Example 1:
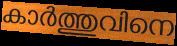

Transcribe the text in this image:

കാർത്തുവിനെ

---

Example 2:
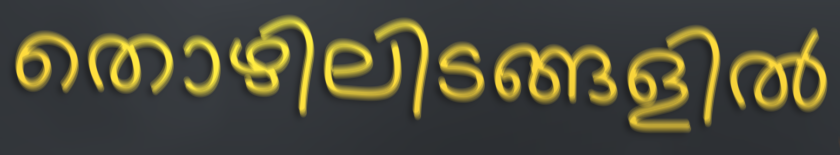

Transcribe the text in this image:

തൊഴിലിടങ്ങളിൽ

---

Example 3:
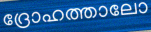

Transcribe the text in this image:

ദ്രോഹത്താലോ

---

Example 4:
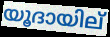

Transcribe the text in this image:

യൂദായില്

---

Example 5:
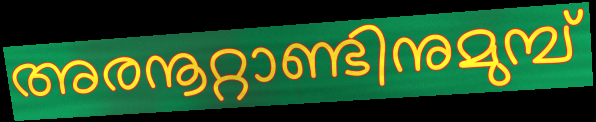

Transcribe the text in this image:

അരനൂറ്റാണ്ടിനുമുമ്പ്